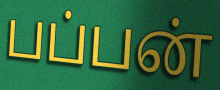
பப்பன்